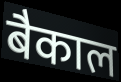
बैकाल